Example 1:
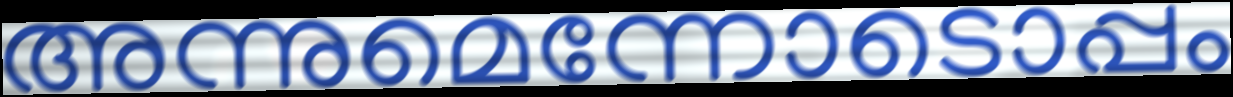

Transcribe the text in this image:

അന്നുമെന്നോടൊപ്പം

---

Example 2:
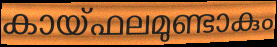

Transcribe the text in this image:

കായ്ഫലമുണ്ടാകും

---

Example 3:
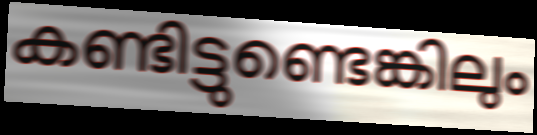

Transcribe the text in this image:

കണ്ടിട്ടുണ്ടെങ്കിലും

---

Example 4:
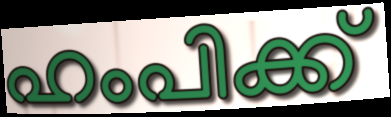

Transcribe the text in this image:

ഹംപിക്ക്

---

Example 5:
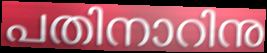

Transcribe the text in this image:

പതിനാറിനു